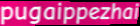
pugaippezhai